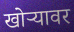
खोऱ्यावर